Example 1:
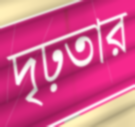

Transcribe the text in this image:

দৃঢ়তার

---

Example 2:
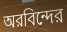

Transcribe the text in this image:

অরবিন্দের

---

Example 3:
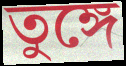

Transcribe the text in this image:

তুঙ্গে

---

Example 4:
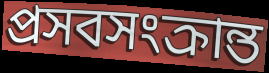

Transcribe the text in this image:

প্রসবসংক্রান্ত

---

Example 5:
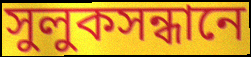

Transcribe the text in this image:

সুলুকসন্ধানে